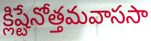
క్లిష్టేనోత్తమవాససా